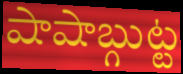
షాషాబ్గుట్ట